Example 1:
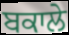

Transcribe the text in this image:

ਬਕਾਲੇ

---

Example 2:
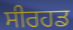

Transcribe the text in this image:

ਸੀਰਹਡ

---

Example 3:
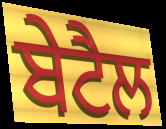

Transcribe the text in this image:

ਬੇਟੈਲ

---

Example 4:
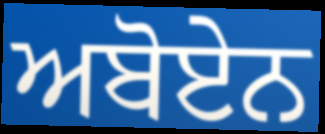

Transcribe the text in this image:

ਅਬੋਏਨ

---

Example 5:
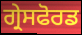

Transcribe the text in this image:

ਗ੍ਰੇਸਫੋਰਡ